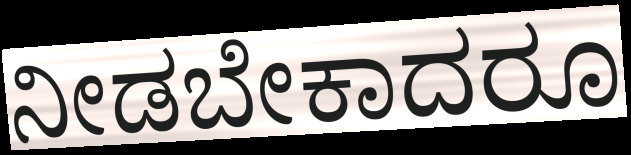
ನೀಡಬೇಕಾದರೂ